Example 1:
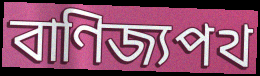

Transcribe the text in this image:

বাণিজ্যপথ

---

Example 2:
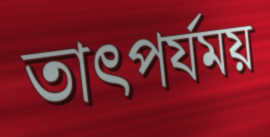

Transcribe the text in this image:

তাৎপর্যময়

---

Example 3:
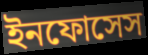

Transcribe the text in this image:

ইনফোসেস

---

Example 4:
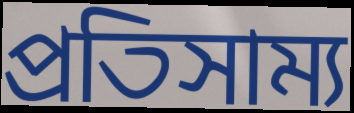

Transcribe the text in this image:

প্রতিসাম্য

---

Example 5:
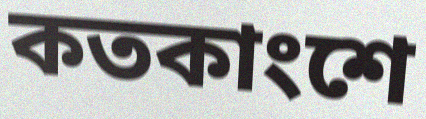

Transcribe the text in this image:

কতকাংশে